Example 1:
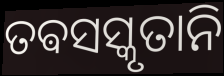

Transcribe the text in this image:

ତଵସସ୍କୃତାନି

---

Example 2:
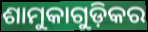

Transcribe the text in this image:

ଶାମୁକାଗୁଡ଼ିକର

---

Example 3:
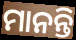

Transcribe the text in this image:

ମାନନ୍ତି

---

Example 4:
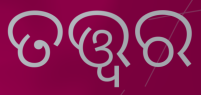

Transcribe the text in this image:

ତତ୍ତ୍ଵର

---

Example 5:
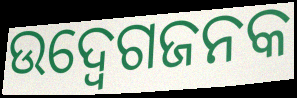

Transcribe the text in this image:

ଉଦ୍ବେଗଜନକ